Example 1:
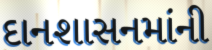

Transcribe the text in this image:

દાનશાસનમાંની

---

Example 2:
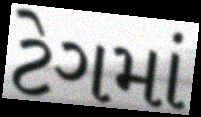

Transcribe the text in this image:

ટેગમાં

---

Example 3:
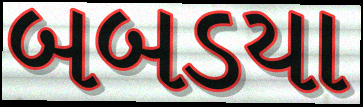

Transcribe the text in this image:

બબડયા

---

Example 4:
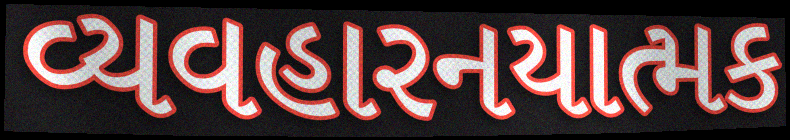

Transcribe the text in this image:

વ્યવહારનયાત્મક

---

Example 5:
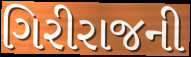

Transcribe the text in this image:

ગિરીરાજની